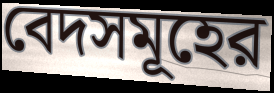
বেদসমূহের